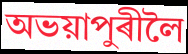
অভয়াপুৰীলৈ